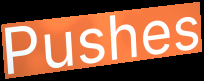
Pushes